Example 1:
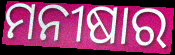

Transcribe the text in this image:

ମନୀଷାର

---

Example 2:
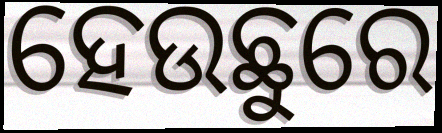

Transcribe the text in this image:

ହେଉଛୁରେ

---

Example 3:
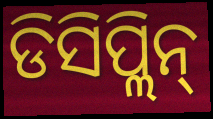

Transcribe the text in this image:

ଡିସିପ୍ଲିନ୍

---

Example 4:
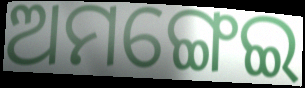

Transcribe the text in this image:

ଅମଙ୍ଗେଇ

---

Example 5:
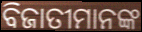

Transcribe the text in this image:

ବିଜାତୀମାନଙ୍କ